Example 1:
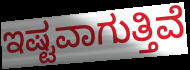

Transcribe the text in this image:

ಇಷ್ಟವಾಗುತ್ತಿವೆ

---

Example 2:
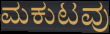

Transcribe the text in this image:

ಮಕುಟವು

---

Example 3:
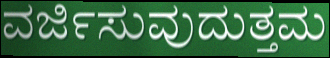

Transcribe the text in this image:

ವರ್ಜಿಸುವುದುತ್ತಮ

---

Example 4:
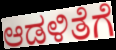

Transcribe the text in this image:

ಆಡಳಿತೆಗೆ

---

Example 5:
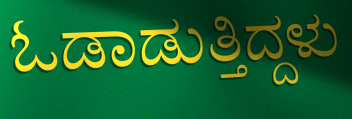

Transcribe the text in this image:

ಓಡಾಡುತ್ತಿದ್ದಳು